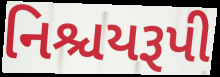
નિશ્ચયરૂપી